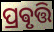
ପ୍ରଵୃତ୍ତି